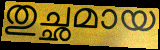
തുച്ഛമായ